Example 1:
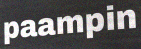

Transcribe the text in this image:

paampin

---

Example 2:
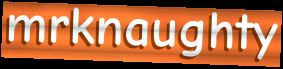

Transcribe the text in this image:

mrknaughty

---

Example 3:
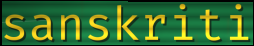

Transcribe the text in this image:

sanskriti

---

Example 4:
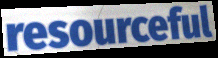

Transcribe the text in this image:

resourceful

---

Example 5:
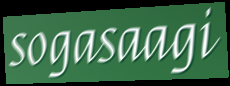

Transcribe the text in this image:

sogasaagi